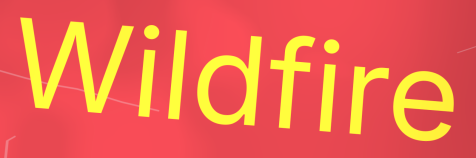
Wildfire